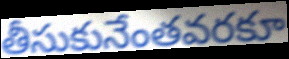
తీసుకునేంతవరకూ